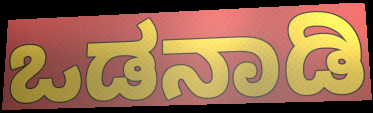
ಒಡನಾಡಿ